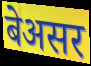
बेअसर